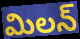
మిలన్